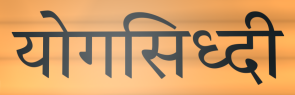
योगसिध्दी